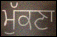
ਮੁੱਕਣਾ